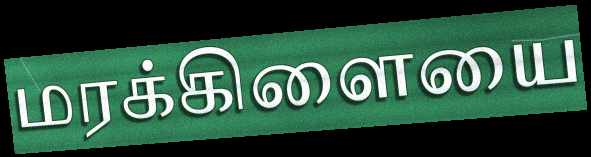
மரக்கிளையை